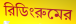
রিডিংরুমের